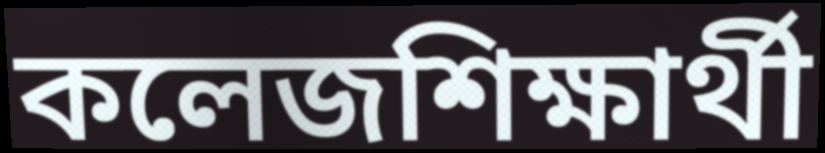
কলেজশিক্ষার্থী